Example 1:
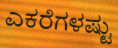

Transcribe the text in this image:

ಎಕರೆಗಳಷ್ಟು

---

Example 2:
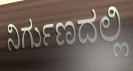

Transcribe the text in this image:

ನಿರ್ಗುಣದಲ್ಲಿ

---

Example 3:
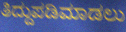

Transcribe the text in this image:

ತಿದ್ದುಪಡಿಮಾಡಲು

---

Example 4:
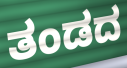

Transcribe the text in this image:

ತಂಡದ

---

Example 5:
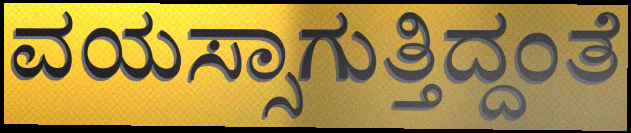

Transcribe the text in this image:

ವಯಸ್ಸಾಗುತ್ತಿದ್ದಂತೆ